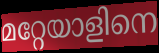
മറ്റേയാളിനെ